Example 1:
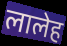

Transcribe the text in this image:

लालेह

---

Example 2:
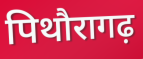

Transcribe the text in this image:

पिथौरागढ़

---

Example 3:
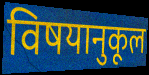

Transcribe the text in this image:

विषयानुकूल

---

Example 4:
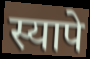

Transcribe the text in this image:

स्यापे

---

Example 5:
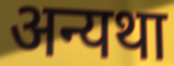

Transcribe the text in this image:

अन्यथा